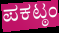
ಪಕಟ್ಠಂ